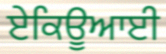
ਏਕਿਊਆਈ